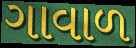
ગાવાળ